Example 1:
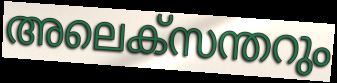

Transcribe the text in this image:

അലെക്സന്തറും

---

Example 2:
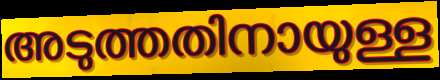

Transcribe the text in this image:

അടുത്തതിനായുള്ള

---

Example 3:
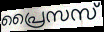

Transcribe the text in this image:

പ്രൈസസ്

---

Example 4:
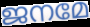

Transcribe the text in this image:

ജനമേ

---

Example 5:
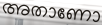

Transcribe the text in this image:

അതാണോ